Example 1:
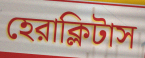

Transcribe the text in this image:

হেরাক্লিটাস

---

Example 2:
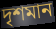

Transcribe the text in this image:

দৃশমান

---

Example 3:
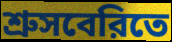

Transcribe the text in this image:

শ্রুসবেরিতে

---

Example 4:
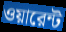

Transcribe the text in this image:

ওয়ারেন্ট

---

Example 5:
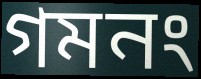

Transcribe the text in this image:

গমনং